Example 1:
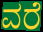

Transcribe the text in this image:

ವರೆ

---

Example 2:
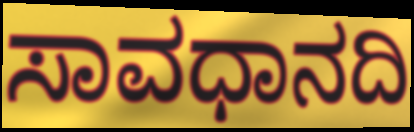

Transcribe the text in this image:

ಸಾವಧಾನದಿ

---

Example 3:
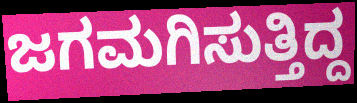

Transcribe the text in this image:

ಜಗಮಗಿಸುತ್ತಿದ್ದ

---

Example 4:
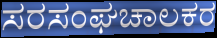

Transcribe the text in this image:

ಸರಸಂಘಚಾಲಕರ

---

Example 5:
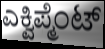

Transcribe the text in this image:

ಎಕ್ವಿಪ್ಮೆಂಟ್